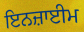
ਇਨਜ਼ਾਈਮ